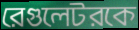
রেগুলেটরকে